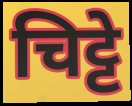
चिट्टे